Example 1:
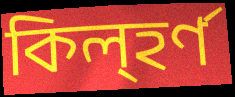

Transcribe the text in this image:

কিল্‌হর্ণ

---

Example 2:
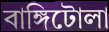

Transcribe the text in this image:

বাঙ্গিটোলা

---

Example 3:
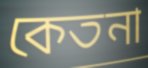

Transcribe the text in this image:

কেতনা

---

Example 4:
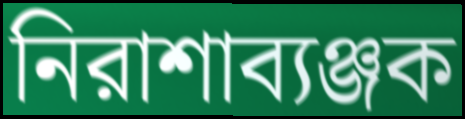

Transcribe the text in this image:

নিরাশাব্যঞ্জক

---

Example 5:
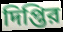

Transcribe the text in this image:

দিপ্তির